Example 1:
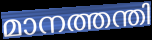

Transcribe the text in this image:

മാനത്തന്തി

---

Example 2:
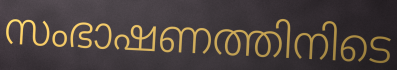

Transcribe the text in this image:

സംഭാഷണത്തിനിടെ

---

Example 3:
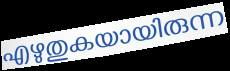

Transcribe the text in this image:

എഴുതുകയായിരുന്ന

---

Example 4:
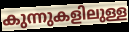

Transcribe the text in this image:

കുന്നുകളിലുള്ള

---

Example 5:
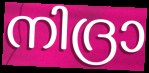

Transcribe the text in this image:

നിദ്രാ